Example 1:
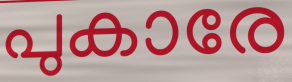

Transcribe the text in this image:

പുകാരേ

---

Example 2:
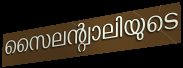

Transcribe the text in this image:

സൈലന്റ്വാലിയുടെ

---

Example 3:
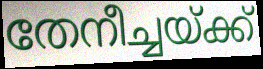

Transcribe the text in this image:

തേനീച്ചയ്ക്ക്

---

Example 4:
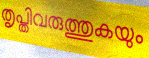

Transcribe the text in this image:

തൃപ്തിവരുത്തുകയും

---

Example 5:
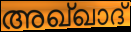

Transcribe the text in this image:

അഖ്ഖാദ്